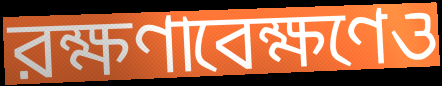
রক্ষণাবেক্ষণেও